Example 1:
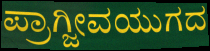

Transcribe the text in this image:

ಪ್ರಾಗ್ಜೀವಯುಗದ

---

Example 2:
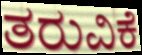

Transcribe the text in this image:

ತರುವಿಕೆ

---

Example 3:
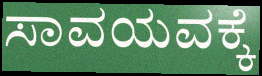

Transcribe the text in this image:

ಸಾವಯವಕ್ಕೆ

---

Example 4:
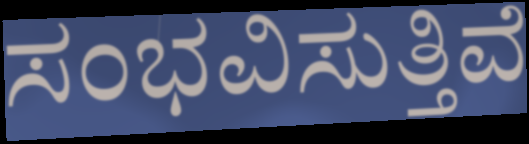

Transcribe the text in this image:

ಸಂಭವಿಸುತ್ತಿವೆ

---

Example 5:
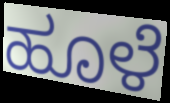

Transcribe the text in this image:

ಹೂಳೆ